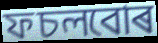
ফচলবোৰ